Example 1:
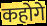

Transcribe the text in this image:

कहोगे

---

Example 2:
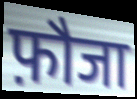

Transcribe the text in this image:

फ़ौजा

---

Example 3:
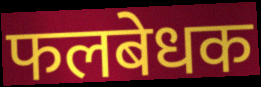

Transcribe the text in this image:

फलबेधक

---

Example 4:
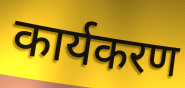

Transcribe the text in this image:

कार्यकरण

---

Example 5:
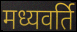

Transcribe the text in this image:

मध्यवर्ति